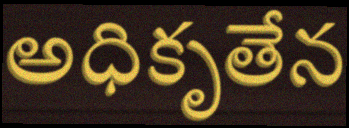
అధికృతేన